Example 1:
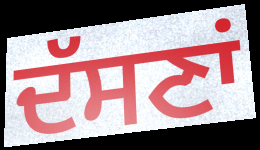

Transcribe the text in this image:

ਦੱਸਣਾਂ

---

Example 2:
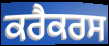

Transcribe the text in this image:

ਕਰੈਕਰਸ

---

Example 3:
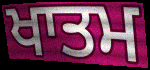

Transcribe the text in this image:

ਖਾਤਮ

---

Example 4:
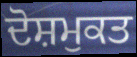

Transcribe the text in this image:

ਦੋਸ਼ਮੁਕਤ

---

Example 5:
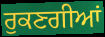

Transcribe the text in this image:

ਰੁਕਣਗੀਆਂ